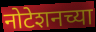
नोटेशनच्या